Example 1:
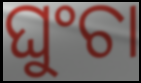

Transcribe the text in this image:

ଘୁଂଚା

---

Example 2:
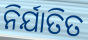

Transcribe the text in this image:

ନିର୍ଯାତିତ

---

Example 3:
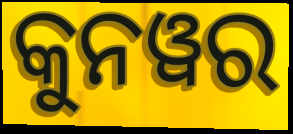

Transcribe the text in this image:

କୁନୱର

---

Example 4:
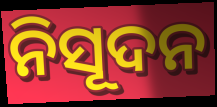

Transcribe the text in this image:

ନିସୂଦନ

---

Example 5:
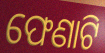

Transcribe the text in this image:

ଫେଣାଟି